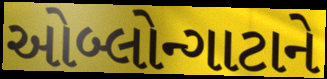
ઓબ્લોન્ગાટાને